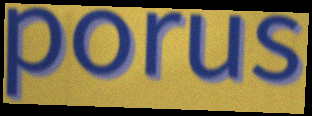
porus